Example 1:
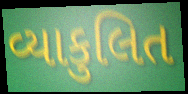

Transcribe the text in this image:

વ્યાકુલિત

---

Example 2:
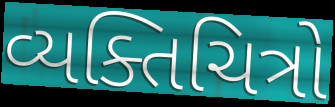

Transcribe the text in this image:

વ્યક્તિચિત્રો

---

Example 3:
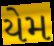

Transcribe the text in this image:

યેમ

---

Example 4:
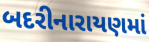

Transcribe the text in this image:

બદરીનારાયણમાં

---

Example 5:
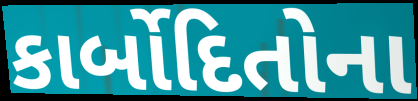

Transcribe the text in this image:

કાર્બોદિતોના